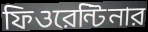
ফিওরেন্টিনার